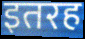
इतरह